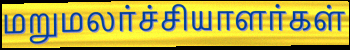
மறுமலர்ச்சியாளர்கள்